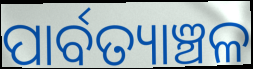
ପାର୍ବତ୍ୟାଞ୍ଚଳ